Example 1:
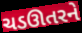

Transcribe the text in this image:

ચડઊતરને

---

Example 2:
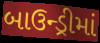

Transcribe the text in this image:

બાઉન્ડ્રીમાં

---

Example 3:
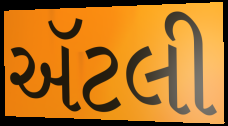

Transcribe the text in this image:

ઍટલી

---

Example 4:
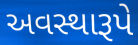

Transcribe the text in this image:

અવસ્થારૂપે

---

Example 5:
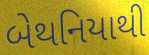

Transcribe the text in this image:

બેથનિયાથી